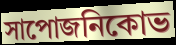
সাপোজনিকোভ